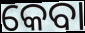
କେବା